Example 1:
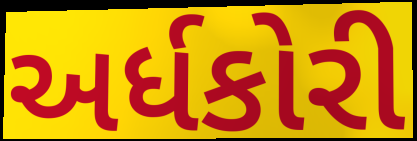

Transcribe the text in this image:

અર્ધકોરી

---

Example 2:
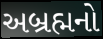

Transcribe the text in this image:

અબ્રહ્મનો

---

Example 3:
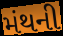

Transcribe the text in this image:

મંથની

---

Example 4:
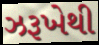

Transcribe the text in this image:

ઝરૂખેથી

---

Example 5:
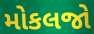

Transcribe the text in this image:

મોકલજો